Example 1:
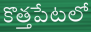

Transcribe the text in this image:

కొత్తపేటలో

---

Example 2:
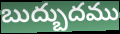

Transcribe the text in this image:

బుద్బుదము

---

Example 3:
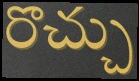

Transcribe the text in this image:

రొచ్చు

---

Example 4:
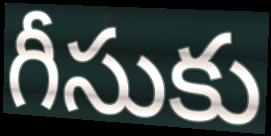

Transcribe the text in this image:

గీసుకు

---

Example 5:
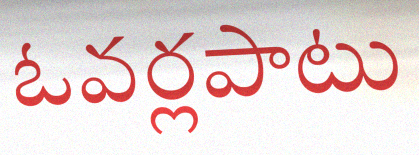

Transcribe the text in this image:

ఓవర్లపాటు